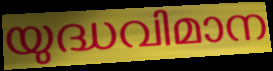
യുദ്ധവിമാന